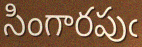
సింగారపుఁ